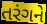
તરંગને